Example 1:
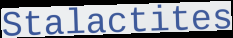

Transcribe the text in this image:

Stalactites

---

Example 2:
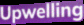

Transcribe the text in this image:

Upwelling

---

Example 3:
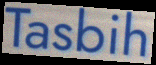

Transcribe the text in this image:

Tasbih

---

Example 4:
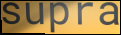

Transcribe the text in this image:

supra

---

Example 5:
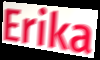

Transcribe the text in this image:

Erika